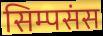
सिम्पसंस